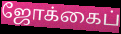
ஜோக்கைப்